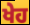
ਖੇਹ